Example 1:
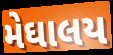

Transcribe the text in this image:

મેઘાલય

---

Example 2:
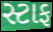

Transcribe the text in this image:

સ્ટાફ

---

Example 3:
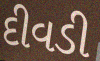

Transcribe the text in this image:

દીવડી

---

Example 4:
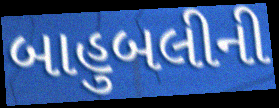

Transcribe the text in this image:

બાહુબલીની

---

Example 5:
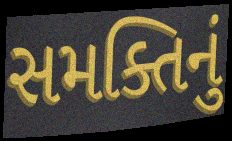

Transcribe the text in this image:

સમક્તિનું